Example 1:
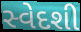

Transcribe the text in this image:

સ્વેદશી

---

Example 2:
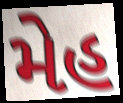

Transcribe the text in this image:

મેહ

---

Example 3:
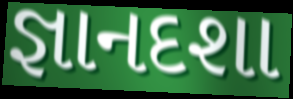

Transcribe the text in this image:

જ્ઞાનદશા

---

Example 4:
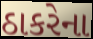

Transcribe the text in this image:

ઠાકરેના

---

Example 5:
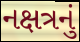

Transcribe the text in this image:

નક્ષત્રનું